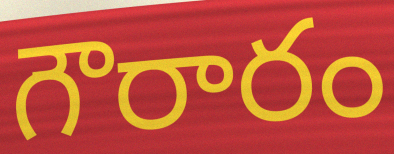
గౌరారం